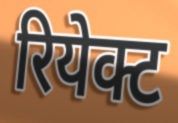
रियेक्ट